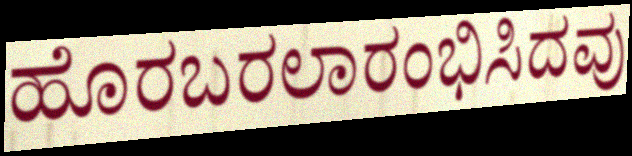
ಹೊರಬರಲಾರಂಭಿಸಿದವು